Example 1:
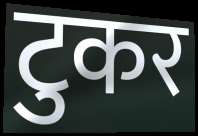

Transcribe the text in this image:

टुकर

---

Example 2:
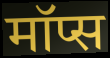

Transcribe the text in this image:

मॉप्स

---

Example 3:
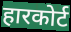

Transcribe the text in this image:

हारकोर्ट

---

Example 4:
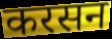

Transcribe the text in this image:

करसन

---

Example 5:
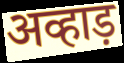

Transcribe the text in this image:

अव्हाड़